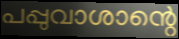
പപ്പുവാശാന്റെ